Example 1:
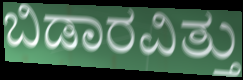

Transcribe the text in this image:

ಬಿಡಾರವಿತ್ತು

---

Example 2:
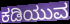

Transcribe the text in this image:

ಕಡಿಯುವ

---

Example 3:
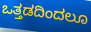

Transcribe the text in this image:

ಒತ್ತಡದಿಂದಲೂ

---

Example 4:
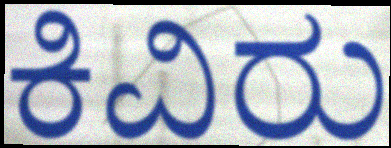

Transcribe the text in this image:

ಕಿವಿರು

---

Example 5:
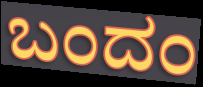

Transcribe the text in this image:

ಬಂದಂ